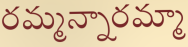
రమ్మన్నారమ్మా